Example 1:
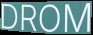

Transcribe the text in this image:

DROM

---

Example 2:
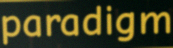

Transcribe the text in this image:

paradigm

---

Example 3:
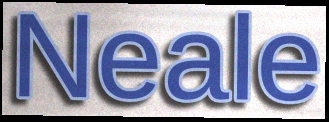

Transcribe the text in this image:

Neale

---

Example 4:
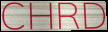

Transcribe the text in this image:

CHRD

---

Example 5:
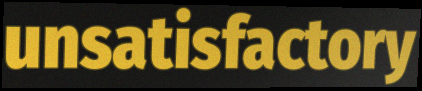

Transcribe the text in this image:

unsatisfactory